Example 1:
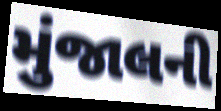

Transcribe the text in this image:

મુંજાલની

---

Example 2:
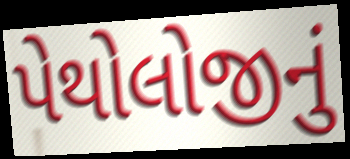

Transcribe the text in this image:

પેથોલોજીનું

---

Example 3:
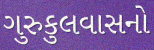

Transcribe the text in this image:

ગુરુકુલવાસનો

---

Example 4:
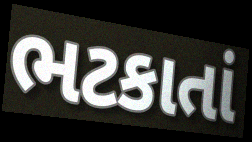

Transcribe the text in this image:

ભટકાતાં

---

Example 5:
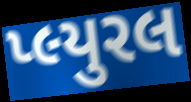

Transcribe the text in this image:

પ્લ્યુરલ